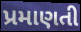
પ્રમાણતી